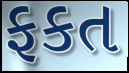
ફકત